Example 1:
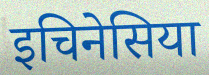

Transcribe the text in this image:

इचिनेसिया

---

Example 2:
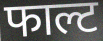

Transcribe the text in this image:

फाल्ट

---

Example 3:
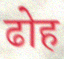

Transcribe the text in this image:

ढोह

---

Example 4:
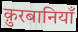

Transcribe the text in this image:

क़ुरबानियाँ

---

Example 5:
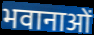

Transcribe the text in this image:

भवानाओं